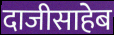
दाजीसाहेब